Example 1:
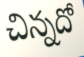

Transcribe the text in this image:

చిన్నదో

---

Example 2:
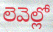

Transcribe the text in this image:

లెవెల్లో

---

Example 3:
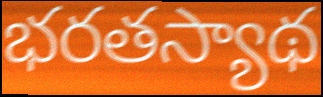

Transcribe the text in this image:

భరతస్యాథ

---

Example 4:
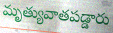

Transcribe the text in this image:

మృత్యువాతపడ్డారు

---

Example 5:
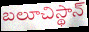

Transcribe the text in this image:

బలూచిస్థాన్